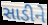
સાડીને